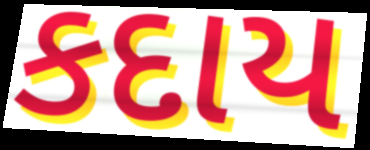
કદાય